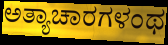
ಅತ್ಯಾಚಾರಗಳಂಥ